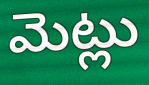
మెట్లు